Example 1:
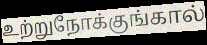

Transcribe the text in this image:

உற்றுநோக்குங்கால்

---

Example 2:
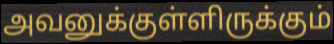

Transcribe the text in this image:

அவனுக்குள்ளிருக்கும்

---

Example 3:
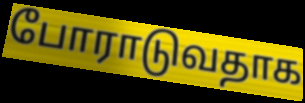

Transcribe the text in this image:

போராடுவதாக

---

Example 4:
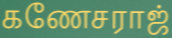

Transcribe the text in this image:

கணேசராஜ்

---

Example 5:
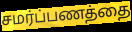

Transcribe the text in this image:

சமர்ப்பணத்தை